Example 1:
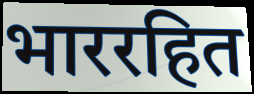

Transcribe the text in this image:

भाररहित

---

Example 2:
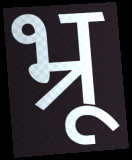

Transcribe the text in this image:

भ्रू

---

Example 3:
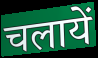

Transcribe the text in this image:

चलायें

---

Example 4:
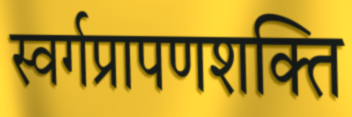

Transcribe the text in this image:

स्वर्गप्रापणशक्ति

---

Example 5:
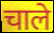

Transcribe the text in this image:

चाले